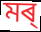
মৰ্